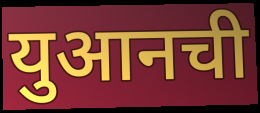
युआनची